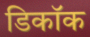
डिकॉक